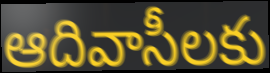
ఆదివాసీలకు